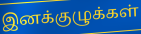
இனக்குழுக்கள்